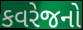
કવરેજનો